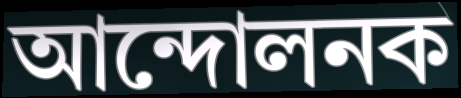
আন্দোলনক